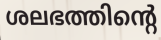
ശലഭത്തിന്റെ